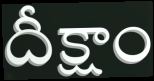
దీక్షాం